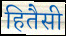
हितैसी